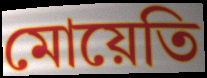
মোয়েতি